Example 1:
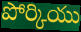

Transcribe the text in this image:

పోర్కియు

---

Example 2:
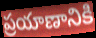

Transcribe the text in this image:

ప్రయాణానికి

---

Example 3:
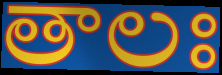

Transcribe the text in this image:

తాలః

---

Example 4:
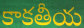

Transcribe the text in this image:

కాకతీయ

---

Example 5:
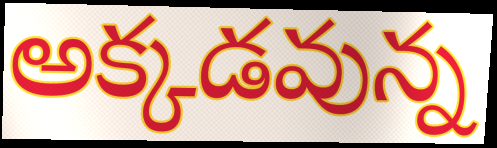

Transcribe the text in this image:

అక్కడవున్న